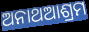
ଅନାଥଆଶ୍ରମ